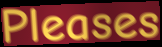
Pleases